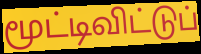
மூட்டிவிட்டுப்